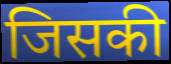
जिसकी